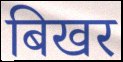
बिखर